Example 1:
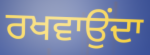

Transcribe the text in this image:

ਰਖਵਾਉਂਦਾ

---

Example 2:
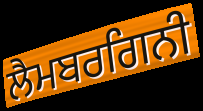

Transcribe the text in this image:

ਲੈਮਬਰਗਿਨੀ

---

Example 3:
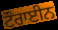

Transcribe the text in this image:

ਟੌਰਾਈਨ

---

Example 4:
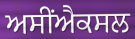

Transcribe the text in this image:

ਅਸੀਂਐਕਸਲ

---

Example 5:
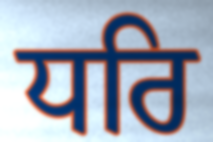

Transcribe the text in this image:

ਧਰਿ